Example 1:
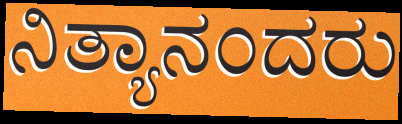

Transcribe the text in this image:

ನಿತ್ಯಾನಂದರು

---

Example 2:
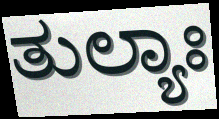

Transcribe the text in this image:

ತುಲ್ಯಾಃ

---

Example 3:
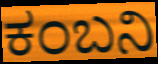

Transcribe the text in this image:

ಕಂಬನಿ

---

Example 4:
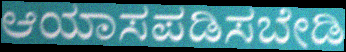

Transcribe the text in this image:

ಆಯಾಸಪಡಿಸಬೇಡಿ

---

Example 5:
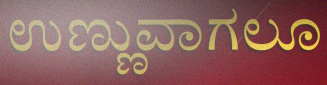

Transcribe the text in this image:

ಉಣ್ಣುವಾಗಲೂ